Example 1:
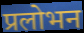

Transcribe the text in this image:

प्रलोभन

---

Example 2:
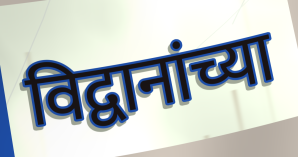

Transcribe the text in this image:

विद्वानांच्या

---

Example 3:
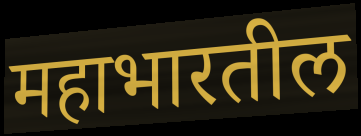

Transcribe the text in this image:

महाभारतील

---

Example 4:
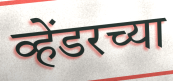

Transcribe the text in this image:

व्हेंडरच्या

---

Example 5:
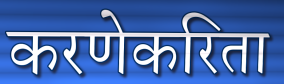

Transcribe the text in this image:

करणेकरिता